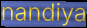
nandiya